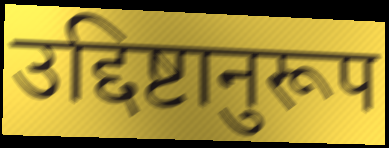
उद्दिष्टानुरूप